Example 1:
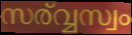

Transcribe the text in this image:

സര്വ്വസ്വം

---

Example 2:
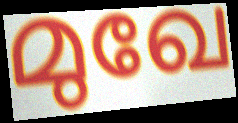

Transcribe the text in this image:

മുഖേ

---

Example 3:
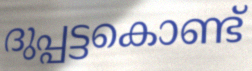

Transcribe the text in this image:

ദുപ്പട്ടകൊണ്ട്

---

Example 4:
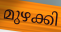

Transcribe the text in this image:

മുഴക്കി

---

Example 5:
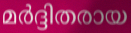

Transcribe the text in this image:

മർദ്ദിതരായ